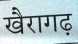
खैरागढ़